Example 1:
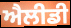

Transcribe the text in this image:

ਐਲੀਡੀ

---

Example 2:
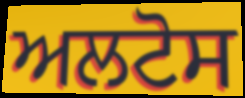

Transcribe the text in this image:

ਅਲਟੋਸ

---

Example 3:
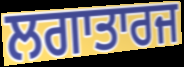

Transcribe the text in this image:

ਲਗਾਤਾਰਜ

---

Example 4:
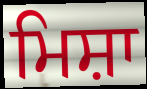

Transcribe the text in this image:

ਮਿਸ਼ਾ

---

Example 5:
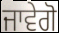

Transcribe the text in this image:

ਜਾਵੇਗੋ